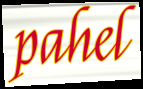
pahel